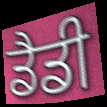
ਡੈਡੀ